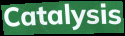
Catalysis